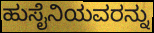
ಹುಸೈನಿಯವರನ್ನು